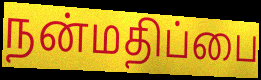
நன்மதிப்பை